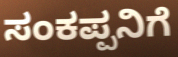
ಸಂಕಪ್ಪನಿಗೆ